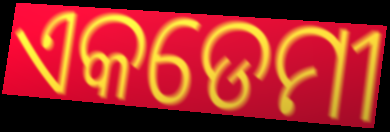
ଏକଡେମୀ